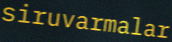
siruvarmalar